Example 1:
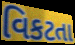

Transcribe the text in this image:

વિકટતા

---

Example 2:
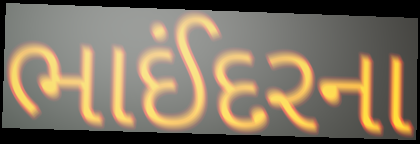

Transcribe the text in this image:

ભાઈંદરના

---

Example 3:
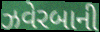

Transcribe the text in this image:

ઝવેરબાની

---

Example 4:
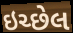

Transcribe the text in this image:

ઇચ્છેલ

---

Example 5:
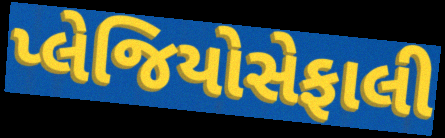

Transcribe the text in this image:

પ્લેજિયોસેફાલી